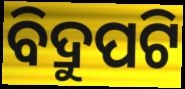
ବିଦ୍ରୁପଟି